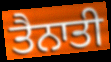
ਤੈਨਾਤੀ